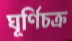
ঘূর্ণিচক্র